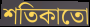
শতিকাতো